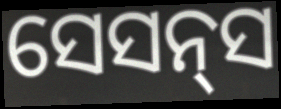
ସେସନ୍‌ସ